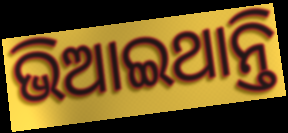
ଭିଆଇଥାନ୍ତି